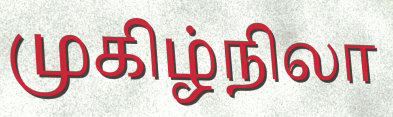
முகிழ்நிலா